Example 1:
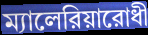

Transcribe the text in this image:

ম্যালেরিয়ারোধী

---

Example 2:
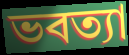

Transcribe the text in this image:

ভবত্যা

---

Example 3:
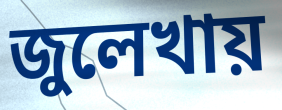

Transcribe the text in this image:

জুলেখায়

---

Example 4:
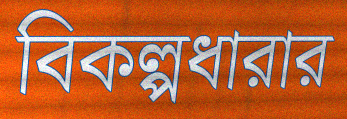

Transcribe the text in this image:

বিকল্পধারার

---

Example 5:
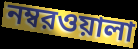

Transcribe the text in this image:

নম্বরওয়ালা